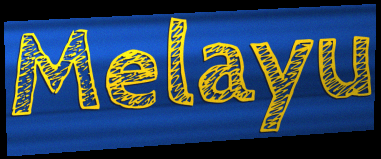
Melayu